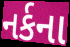
નર્કના